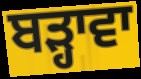
ਬੜ੍ਹਾਵਾ